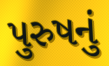
પુરુષનું